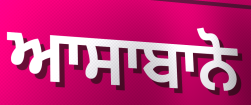
ਆਸਾਬਾਨੋ